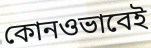
কোনওভাবেই